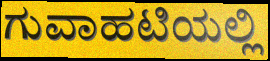
ಗುವಾಹಟಿಯಲ್ಲಿ